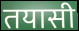
तयासी